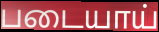
படையாய்